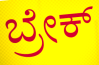
ಬ್ರೇಕ್